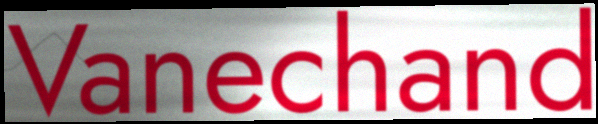
Vanechand